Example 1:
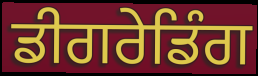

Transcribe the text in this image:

ਡੀਗਰੇਡਿੰਗ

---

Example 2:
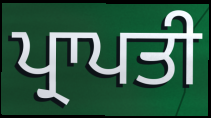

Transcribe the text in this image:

ਪ੍ਰਾਪਤੀ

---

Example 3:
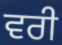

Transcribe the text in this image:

ਵਰੀ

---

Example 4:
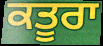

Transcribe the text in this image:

ਕਤੂਰਾ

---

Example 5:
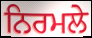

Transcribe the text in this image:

ਨਿਰਮਲੇ